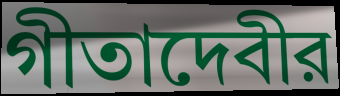
গীতাদেবীর